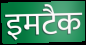
इमटैक